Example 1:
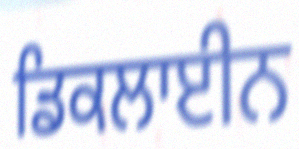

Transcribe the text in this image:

ਡਿਕਲਾਈਨ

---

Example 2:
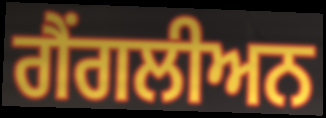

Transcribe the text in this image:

ਗੈਂਗਲੀਅਨ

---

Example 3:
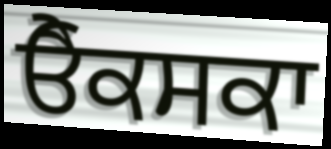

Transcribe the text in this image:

ਓੈਕਸਕਾ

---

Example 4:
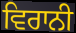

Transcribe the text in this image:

ਵਿਰਾਨੀ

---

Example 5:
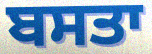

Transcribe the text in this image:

ਬਸਤਾ